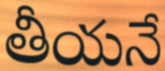
తీయనే